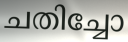
ചതിച്ചോ